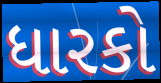
ધારકો